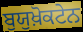
ਬੁਯੁਖ਼ੋਕਟੇਨ